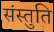
संस्तुति